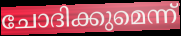
ചോദിക്കുമെന്ന്